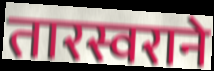
तारस्वराने